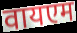
वायएम